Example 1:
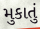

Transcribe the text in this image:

મુકાતું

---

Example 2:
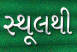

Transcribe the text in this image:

સ્થૂલથી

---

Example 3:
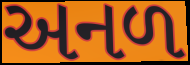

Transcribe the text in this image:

અનળ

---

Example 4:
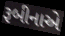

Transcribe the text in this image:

રૂબીનાએ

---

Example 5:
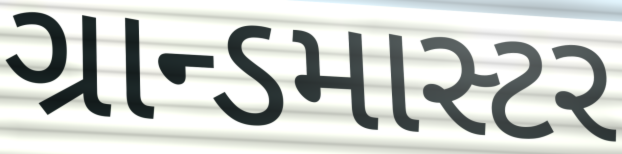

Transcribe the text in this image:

ગ્રાન્ડમાસ્ટર